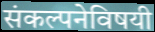
संकल्पनेविषयी